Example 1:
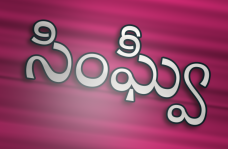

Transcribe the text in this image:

సింఘ్వీ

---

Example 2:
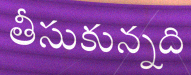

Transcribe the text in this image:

తీసుకున్నది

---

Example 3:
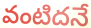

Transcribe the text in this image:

వంటిదనే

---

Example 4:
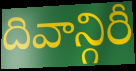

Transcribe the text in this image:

దివాన్గిరీ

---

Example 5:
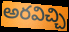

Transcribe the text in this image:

అరవిచ్చి